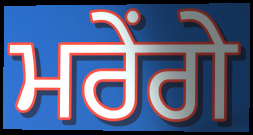
ਮਰੇਂਗੇ